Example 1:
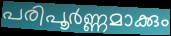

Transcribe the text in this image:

പരിപൂർണ്ണമാക്കും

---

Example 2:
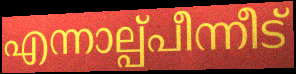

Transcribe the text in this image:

എന്നാല്പ്പീന്നീട്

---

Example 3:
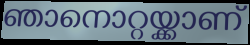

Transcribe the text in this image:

ഞാനൊറ്റയ്ക്കാണ്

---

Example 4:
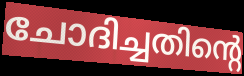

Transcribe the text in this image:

ചോദിച്ചതിന്റെ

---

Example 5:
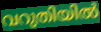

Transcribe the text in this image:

വറുതിയിൽ